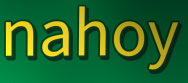
nahoy